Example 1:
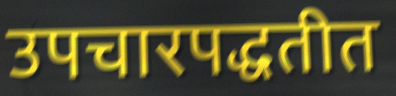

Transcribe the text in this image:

उपचारपद्धतीत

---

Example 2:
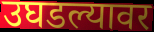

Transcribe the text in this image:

उघडल्यावर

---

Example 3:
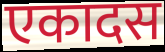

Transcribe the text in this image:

एकादस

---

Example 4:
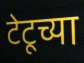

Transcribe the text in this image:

टेटूच्या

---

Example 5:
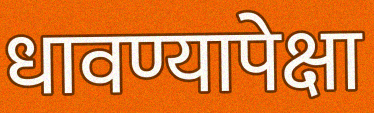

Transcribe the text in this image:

धावण्यापेक्षा